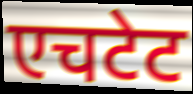
एचटेट